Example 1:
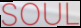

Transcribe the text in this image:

SOUL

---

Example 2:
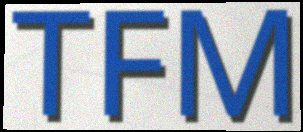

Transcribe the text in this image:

TFM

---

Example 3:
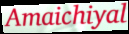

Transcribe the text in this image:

Amaichiyal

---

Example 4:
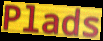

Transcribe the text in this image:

Plads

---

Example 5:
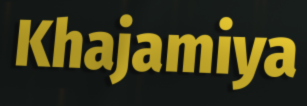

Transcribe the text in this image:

Khajamiya